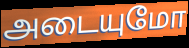
அடையுமோ